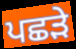
ਪਛੜੇ